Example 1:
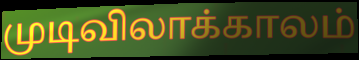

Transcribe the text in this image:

முடிவிலாக்காலம்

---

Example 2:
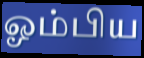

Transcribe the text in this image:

ஓம்பிய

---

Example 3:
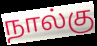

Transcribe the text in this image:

நால்கு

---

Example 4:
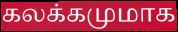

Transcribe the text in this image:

கலக்கமுமாக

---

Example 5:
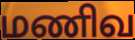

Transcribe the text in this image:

மணிவ